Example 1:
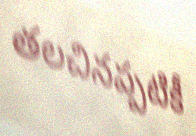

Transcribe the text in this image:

తలచినప్పటికీ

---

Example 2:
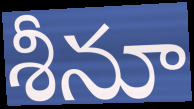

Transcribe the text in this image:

శీనూ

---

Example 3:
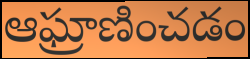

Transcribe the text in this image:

ఆఘ్రాణించడం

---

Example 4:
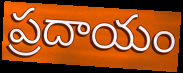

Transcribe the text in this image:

ప్రదాయం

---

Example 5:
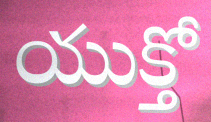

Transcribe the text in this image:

యుక్తో